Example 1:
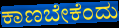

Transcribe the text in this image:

ಕಾಣಬೇಕೆಂದು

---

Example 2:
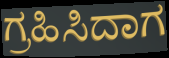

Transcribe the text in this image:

ಗ್ರಹಿಸಿದಾಗ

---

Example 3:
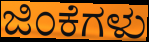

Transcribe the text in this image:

ಜಿಂಕೆಗಳು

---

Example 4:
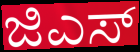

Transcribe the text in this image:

ಜಿಎಸ್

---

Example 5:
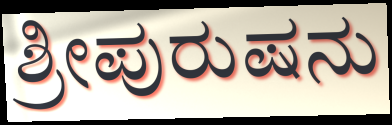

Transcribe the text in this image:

ಶ್ರೀಪುರುಷನು